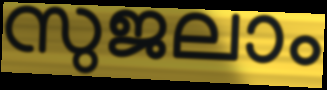
സുജലാം